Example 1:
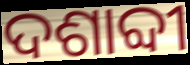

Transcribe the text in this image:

ଦଶାବ୍ଦୀ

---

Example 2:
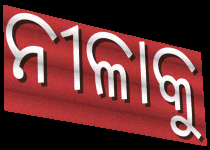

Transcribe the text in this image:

ନୀଳାକୁ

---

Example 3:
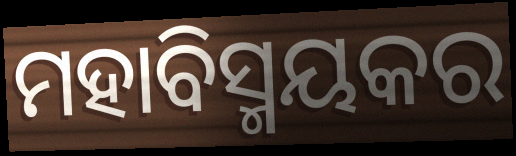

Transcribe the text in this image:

ମହାବିସ୍ମୟକର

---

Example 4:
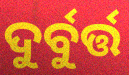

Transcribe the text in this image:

ଦୁର୍ବୁର୍ତ୍ତ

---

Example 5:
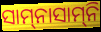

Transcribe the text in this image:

ସାମ୍‍ନାସାମ୍‍ନି